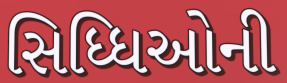
સિધ્ધિઓની